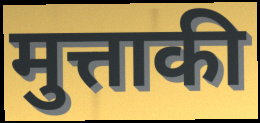
मुत्ताकी